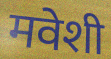
मवेशी